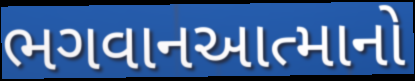
ભગવાનઆત્માનો